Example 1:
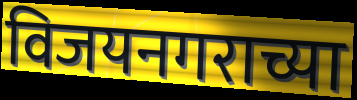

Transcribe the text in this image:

विजयनगराच्या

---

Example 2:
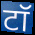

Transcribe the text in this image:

टॉ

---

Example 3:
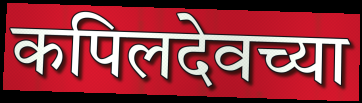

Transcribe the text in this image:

कपिलदेवच्या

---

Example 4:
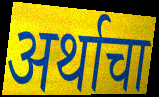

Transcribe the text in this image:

अर्थाचा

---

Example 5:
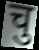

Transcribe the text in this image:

चु